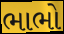
ભાભો